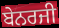
ਬੇਨਰਜੀ